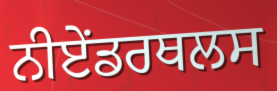
ਨੀਏਂਡਰਥਲਸ